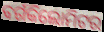
ବର୍ଗକିଲୋମିଟର